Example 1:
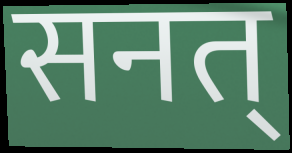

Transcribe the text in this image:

सनत्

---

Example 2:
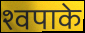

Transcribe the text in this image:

श्वपाके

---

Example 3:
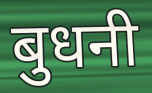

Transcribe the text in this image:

बुधनी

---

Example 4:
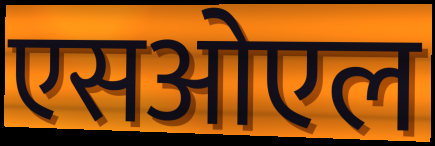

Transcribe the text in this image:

एसओएल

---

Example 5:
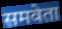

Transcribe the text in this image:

समवेता